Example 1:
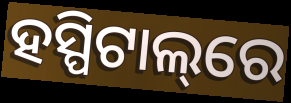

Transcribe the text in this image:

ହସ୍ପିଟାଲ୍‌ରେ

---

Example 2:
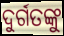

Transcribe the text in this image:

ଦୁର୍ଗତଙ୍କୁ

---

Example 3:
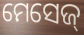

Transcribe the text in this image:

ମେସେଜ୍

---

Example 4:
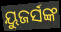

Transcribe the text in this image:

ୟୁଜର୍ସଙ୍କ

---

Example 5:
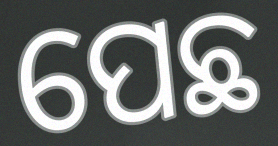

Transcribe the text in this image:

ପେଛ